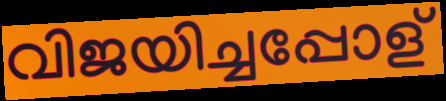
വിജയിച്ചപ്പോള്